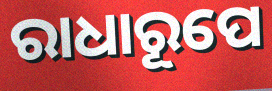
ରାଧାରୂପେ